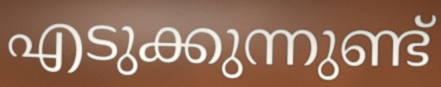
എടുക്കുന്നുണ്ട്